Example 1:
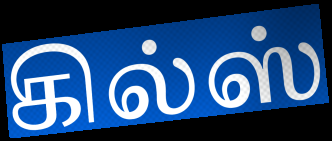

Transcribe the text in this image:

கில்ஸ்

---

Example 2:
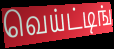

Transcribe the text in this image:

வெய்ட்டிங்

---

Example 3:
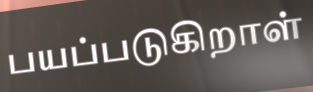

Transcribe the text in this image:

பயப்படுகிறாள்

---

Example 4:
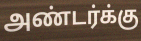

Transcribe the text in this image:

அண்டர்க்கு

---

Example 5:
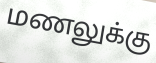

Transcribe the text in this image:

மணலுக்கு